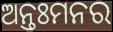
ଅନ୍ତଃମନର